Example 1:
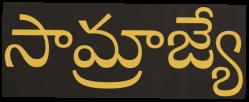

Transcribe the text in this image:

సామ్రాజ్యే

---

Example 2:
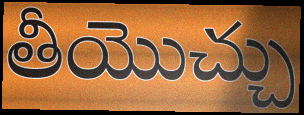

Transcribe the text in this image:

తీయొచ్చు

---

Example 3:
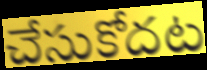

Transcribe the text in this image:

చేసుకోదట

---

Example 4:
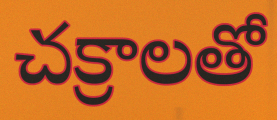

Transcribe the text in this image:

చక్రాలతో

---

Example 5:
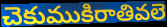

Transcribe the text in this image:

చెకుముకిరాతివలె